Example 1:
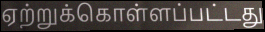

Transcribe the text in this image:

ஏற்றுக்கொள்ளப்பட்டது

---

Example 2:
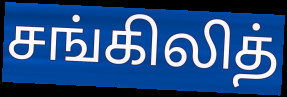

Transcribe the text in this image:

சங்கிலித்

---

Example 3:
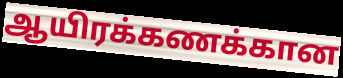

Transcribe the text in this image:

ஆயிரக்கணக்கான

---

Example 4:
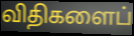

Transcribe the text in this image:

விதிகளைப்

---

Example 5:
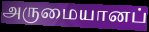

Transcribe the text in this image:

அருமையானப்